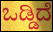
ಒಡ್ಡಿದೆ